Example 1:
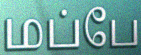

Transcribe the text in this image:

மப்பே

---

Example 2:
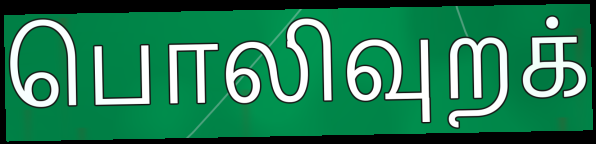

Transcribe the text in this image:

பொலிவுறக்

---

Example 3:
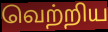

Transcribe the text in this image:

வெற்றிய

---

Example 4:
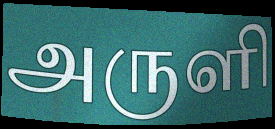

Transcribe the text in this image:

அருளி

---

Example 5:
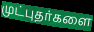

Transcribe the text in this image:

முட்புதர்களை